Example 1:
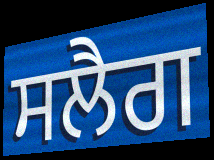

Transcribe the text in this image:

ਸਲੈਗ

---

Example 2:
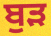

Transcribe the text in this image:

ਬੁੜ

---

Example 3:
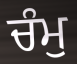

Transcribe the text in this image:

ਚੰਮੁ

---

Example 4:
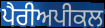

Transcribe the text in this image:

ਪੈਰੀਅਪੀਕਲ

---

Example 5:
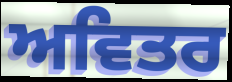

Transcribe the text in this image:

ਅਵਿਤਰ